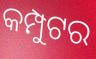
କମ୍ପୁଟର